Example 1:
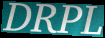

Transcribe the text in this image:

DRPL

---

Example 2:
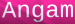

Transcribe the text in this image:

Angam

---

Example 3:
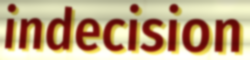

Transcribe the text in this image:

indecision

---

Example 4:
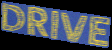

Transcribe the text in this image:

DRIVE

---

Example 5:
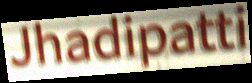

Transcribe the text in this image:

Jhadipatti